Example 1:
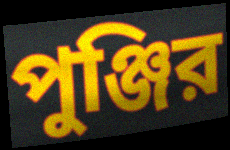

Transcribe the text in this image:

পুঞ্জির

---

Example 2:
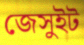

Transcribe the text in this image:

জেসুইট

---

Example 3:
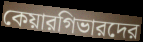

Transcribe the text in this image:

কেয়ারগিভারদের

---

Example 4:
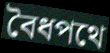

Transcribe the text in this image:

বৈধপথে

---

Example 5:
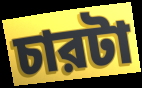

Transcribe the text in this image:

চারটা